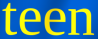
teen